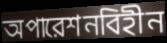
অপারেশনবিহীন